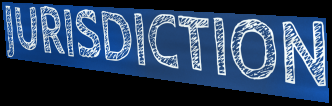
JURISDICTION